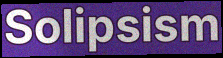
Solipsism